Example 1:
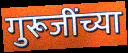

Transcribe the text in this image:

गुरूजींच्या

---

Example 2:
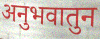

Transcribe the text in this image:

अनुभवातुन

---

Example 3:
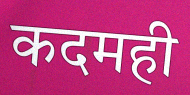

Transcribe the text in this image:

कदमही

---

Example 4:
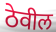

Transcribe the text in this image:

ठेवील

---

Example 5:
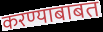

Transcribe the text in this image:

करण्याबाबत